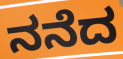
ನನೆದ